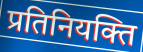
प्रतिनियक्ति